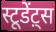
स्टूडेंट़्स